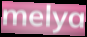
melya